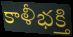
కాళీభక్తి